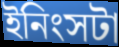
ইনিংসটা